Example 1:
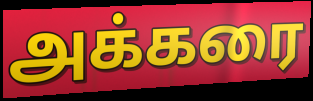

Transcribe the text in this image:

அக்கரை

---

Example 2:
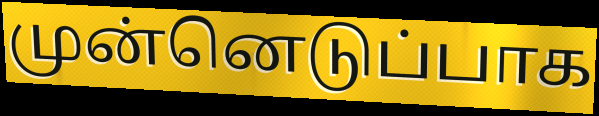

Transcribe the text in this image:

முன்னெடுப்பாக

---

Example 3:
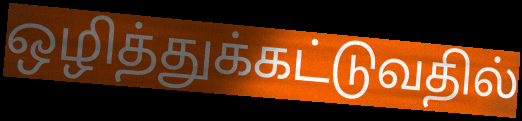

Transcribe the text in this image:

ஒழித்துக்கட்டுவதில்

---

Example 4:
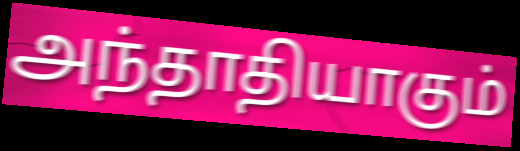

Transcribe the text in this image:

அந்தாதியாகும்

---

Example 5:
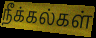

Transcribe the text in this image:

நீக்கல்கள்